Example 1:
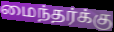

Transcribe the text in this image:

மைந்தர்க்கு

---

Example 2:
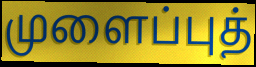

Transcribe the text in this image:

முளைப்புத்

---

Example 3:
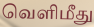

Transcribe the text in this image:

வெளிமீது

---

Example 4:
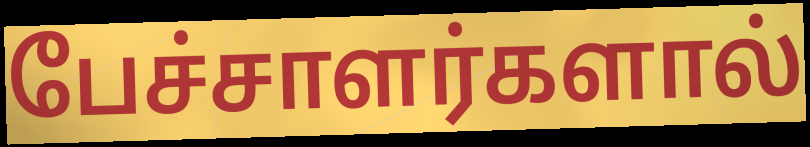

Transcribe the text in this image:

பேச்சாளர்களால்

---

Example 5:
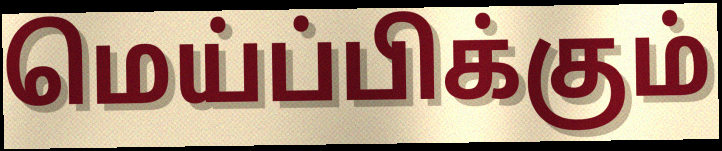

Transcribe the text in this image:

மெய்ப்பிக்கும்